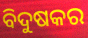
ବିଦୁଷକର